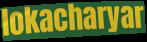
lokacharyar